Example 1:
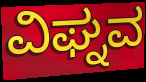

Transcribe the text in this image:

ವಿಘ್ನವ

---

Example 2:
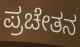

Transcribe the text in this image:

ಪ್ರಚೇತನ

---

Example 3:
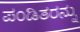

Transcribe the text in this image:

ಪಂಡಿತರನ್ನು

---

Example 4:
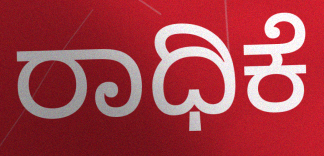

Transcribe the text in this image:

ರಾಧಿಕೆ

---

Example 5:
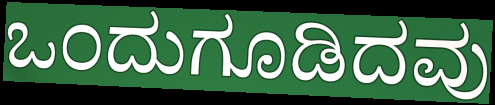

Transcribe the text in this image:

ಒಂದುಗೂಡಿದವು